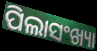
ପିଲାସଂଖ୍ୟା